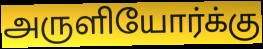
அருளியோர்க்கு